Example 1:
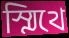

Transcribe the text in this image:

স্মিথে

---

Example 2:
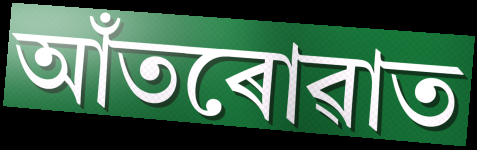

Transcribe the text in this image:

আঁতৰোৱাত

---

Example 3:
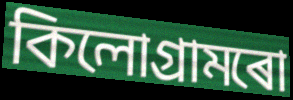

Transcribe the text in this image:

কিলোগ্ৰামৰো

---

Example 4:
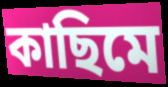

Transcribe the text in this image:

কাছিমে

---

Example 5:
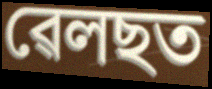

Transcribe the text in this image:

ৱেলছত